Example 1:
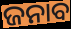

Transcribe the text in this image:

ଜନାବ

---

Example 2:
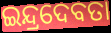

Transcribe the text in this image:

ଇନ୍ଦ୍ରଦେବତା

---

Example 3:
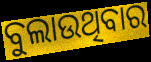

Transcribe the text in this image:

ବୁଲାଉଥିବାର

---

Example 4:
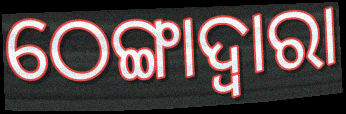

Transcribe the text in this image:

ଠେଙ୍ଗାଦ୍ୱାରା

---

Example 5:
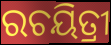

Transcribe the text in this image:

ରଚୟିତ୍ରୀ